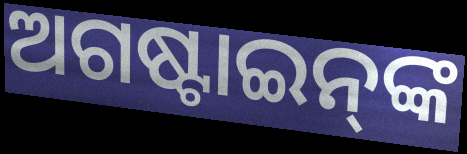
ଅଗଷ୍ଟାଇନ୍‌ଙ୍କ